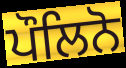
ਪੌਲਿਨੋ